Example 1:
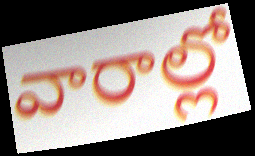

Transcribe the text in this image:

వారాల్లో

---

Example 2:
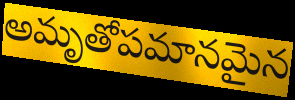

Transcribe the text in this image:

అమృతోపమానమైన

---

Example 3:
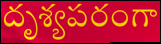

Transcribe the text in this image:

దృశ్యపరంగా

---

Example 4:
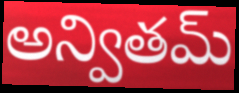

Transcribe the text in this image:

అన్వితమ్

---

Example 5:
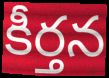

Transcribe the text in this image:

కీర్తన